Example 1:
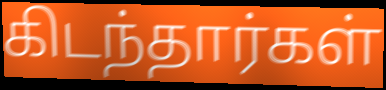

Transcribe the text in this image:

கிடந்தார்கள்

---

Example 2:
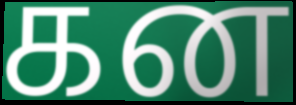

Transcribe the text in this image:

கன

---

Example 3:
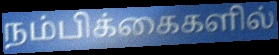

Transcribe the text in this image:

நம்பிக்கைகளில்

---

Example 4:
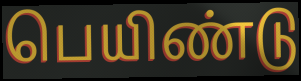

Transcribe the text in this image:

பெயிண்டு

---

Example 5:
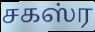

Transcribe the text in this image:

சகஸ்ர